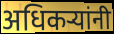
अधिकऱ्यांनी